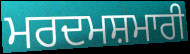
ਮਰਦਮਸ਼ਮਾਰੀ